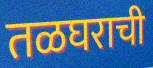
तळघराची